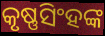
କୃଷ୍ଣସିଂହଙ୍କ